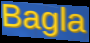
Bagla